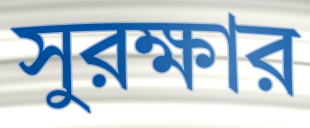
সুরক্ষার